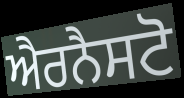
ਐਰਨੈਸਟੋ